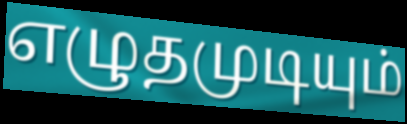
எழுதமுடியும்